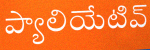
ప్యాలియేటివ్